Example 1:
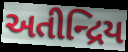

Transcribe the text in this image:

અતીન્દ્રિય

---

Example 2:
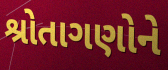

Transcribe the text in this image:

શ્રોતાગણોને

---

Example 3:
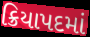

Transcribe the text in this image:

ક્રિયાપદમાં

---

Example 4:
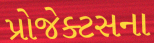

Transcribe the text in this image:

પ્રોજેક્ટસના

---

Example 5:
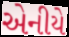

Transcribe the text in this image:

એનીયે